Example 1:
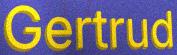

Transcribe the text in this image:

Gertrud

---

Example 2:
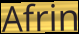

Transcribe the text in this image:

Afrin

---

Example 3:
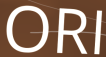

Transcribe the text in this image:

ORI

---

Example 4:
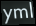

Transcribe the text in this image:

yml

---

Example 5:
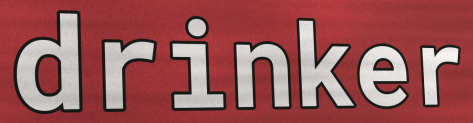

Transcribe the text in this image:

drinker